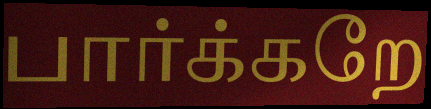
பார்க்கறே